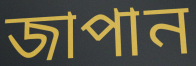
জাপান